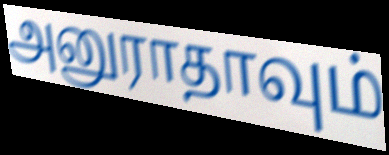
அனுராதாவும்